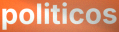
politicos